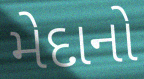
મેદાનો